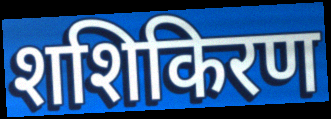
शशिकिरण